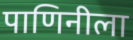
पाणिनीला